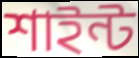
শাইন্ট